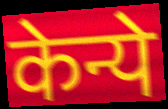
केन्ये